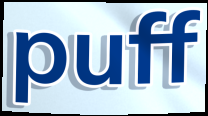
puff